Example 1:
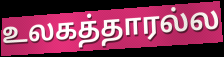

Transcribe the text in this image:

உலகத்தாரல்ல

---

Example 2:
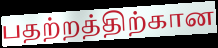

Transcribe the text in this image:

பதற்றத்திற்கான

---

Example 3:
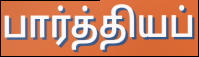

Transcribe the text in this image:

பார்த்தியப்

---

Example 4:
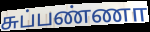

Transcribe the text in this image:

சுப்பண்ணா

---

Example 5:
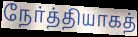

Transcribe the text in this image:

நேர்த்தியாகத்